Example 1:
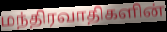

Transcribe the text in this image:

மந்திரவாதிகளின்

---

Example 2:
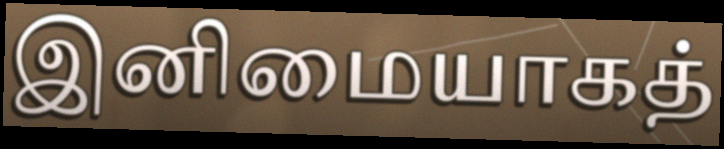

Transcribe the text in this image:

இனிமையாகத்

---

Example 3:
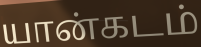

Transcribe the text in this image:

யான்கடம்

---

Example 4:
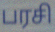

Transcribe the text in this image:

பரசி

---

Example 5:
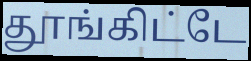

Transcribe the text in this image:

தூங்கிட்டே